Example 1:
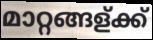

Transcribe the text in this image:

മാറ്റങ്ങള്ക്ക്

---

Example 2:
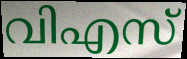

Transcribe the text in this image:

വിഎസ്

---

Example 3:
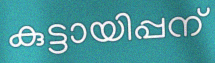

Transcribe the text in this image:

കുട്ടായിപ്പന്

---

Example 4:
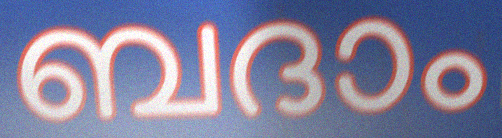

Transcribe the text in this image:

ബദാം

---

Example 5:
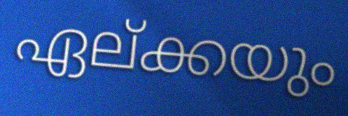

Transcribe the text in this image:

ഏല്ക്കയും